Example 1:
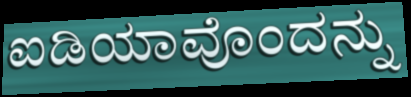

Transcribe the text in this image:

ಐಡಿಯಾವೊಂದನ್ನು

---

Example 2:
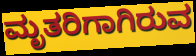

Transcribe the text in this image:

ಮೃತರಿಗಾಗಿರುವ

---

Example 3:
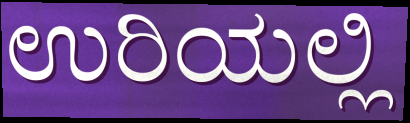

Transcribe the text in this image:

ಉರಿಯಲ್ಲಿ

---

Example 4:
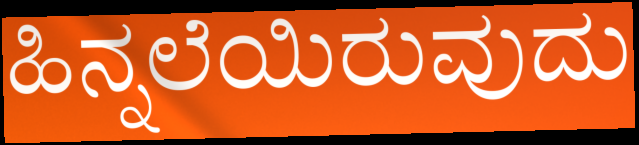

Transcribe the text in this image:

ಹಿನ್ನಲೆಯಿರುವುದು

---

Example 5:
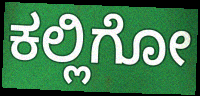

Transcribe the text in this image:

ಕಲ್ಲಿಗೋ